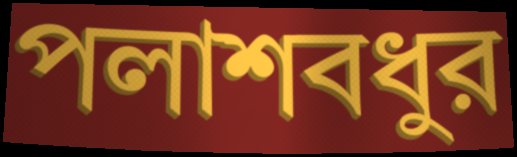
পলাশবধুর